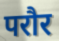
परौर